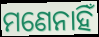
ମଣେନାହିଁ